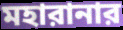
মহারানার